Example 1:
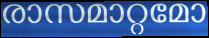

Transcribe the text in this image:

രാസമാറ്റമോ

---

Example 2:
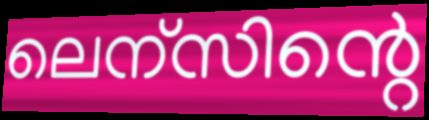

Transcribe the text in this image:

ലെന്സിന്റെ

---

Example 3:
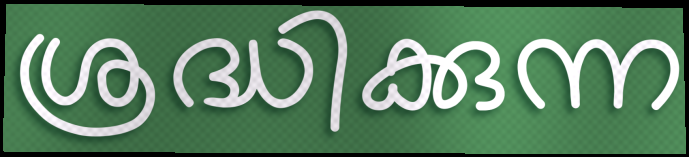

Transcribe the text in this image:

ശ്രദ്ധിക്കുന്ന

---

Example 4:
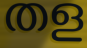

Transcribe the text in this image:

തള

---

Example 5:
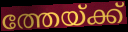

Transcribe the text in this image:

ത്തേയ്ക്ക്